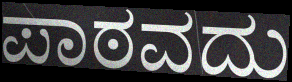
ಪಾಠವದು